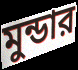
মুন্ডার